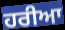
ਹਰੀਆ